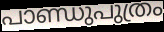
പാണ്ഡുപുത്രം